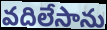
వదిలేసాను